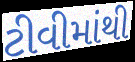
ટીવીમાંથી